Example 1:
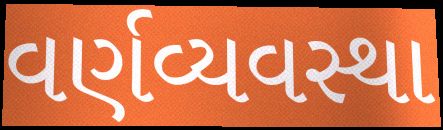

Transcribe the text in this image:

વર્ણવ્યવસ્થા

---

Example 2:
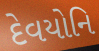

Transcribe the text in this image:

દેવયોનિ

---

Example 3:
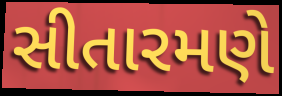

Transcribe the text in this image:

સીતારમણે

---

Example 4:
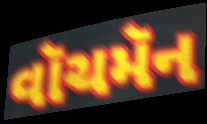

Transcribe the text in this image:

વૉચમૅન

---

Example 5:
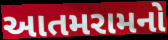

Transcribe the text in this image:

આતમરામનો